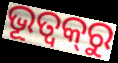
ଭୂତ୍ଵକ୍‌ରୁ